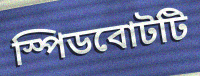
স্পিডবোটটি